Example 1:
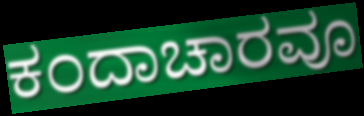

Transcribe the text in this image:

ಕಂದಾಚಾರವೂ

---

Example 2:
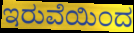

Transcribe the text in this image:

ಇರುವೆಯಿಂದ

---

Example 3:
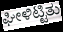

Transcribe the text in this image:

ಘೀಳಿಟ್ಟಿತು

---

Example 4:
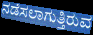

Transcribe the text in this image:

ನಡೆಸಲಾಗುತ್ತಿರುವ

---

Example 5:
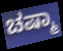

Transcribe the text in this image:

ಚಷ್ಮಾ